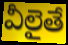
వీలైతే